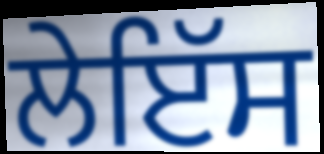
ਲੇਇੱਸ